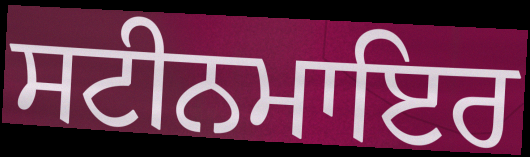
ਸਟੀਨਮਾਇਰ